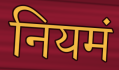
नियमं